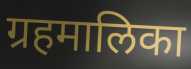
ग्रहमालिका